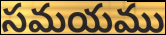
సమయము